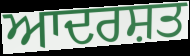
ਆਦਰਸ਼ਤ